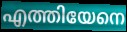
എത്തിയേനെ